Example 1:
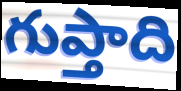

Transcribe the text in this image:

గుప్తాది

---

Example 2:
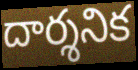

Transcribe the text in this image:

దార్శనిక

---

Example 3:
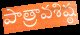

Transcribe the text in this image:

పాత్రావశిష్ఠ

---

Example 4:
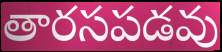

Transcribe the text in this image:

తారసపడవు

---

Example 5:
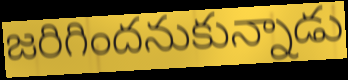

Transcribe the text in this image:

జరిగిందనుకున్నాడు